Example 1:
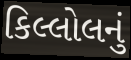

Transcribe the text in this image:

કિલ્લોલનું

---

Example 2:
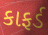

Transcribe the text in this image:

કાફર્ડ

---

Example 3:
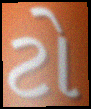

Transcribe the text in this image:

ટો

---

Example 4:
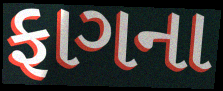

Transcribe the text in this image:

ફાગના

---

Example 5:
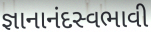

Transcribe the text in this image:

જ્ઞાનાનંદસ્વભાવી